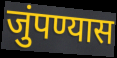
जुंपण्यास